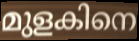
മുളകിനെ